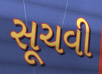
સૂચવી